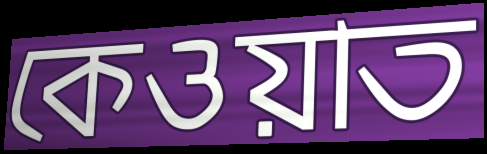
কেওয়াত